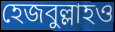
হেজবুল্লাহও